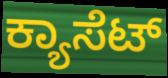
ಕ್ಯಾಸೆಟ್